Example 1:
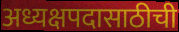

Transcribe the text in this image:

अध्यक्षपदासाठीची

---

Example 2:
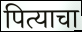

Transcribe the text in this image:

पित्याचा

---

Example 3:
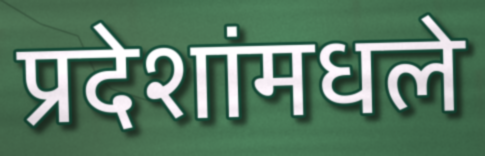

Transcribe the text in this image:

प्रदेशांमधले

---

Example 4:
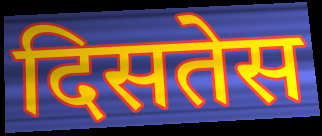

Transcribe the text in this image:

दिसतेस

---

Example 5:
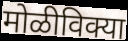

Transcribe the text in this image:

मोळीविक्या